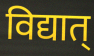
विद्यात्